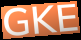
GKE